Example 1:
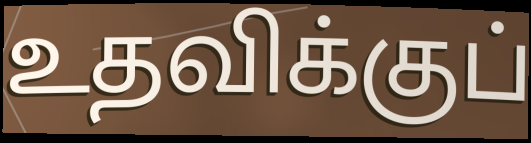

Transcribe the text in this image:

உதவிக்குப்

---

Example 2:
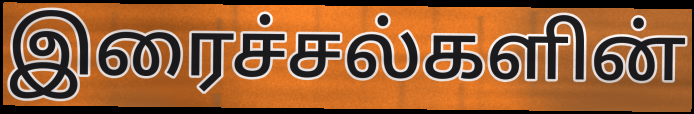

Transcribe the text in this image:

இரைச்சல்களின்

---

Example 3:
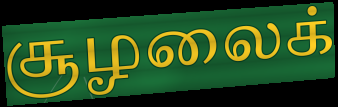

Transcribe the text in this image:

சூழலைக்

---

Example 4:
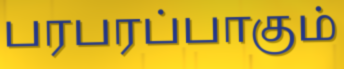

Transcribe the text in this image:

பரபரப்பாகும்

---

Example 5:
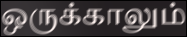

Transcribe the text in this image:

ஒருக்காலும்